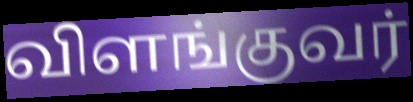
விளங்குவர்